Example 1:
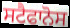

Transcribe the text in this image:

ਸਟੈਫਾਨੋਸ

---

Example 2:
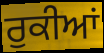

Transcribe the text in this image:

ਰੁਕੀਆਂ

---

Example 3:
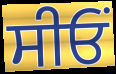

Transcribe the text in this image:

ਸੀਓਂ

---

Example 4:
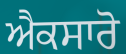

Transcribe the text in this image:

ਐਕਸਾਰੋ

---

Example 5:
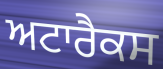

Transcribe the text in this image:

ਅਟਾਰੈਕਸ